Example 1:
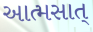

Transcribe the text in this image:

આત્મસાત્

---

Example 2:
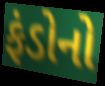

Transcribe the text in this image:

ફંડોનો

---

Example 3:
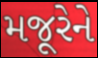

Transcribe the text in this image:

મજૂરેને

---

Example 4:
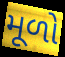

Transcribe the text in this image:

મૂળો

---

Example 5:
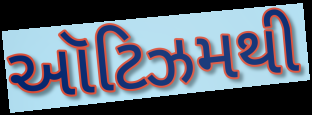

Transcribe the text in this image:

ઑટિઝમથી